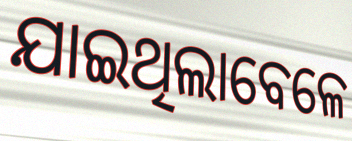
ଯାଇଥିଲାବେଳେ